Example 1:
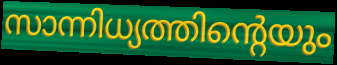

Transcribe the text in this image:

സാന്നിധ്യത്തിന്റെയും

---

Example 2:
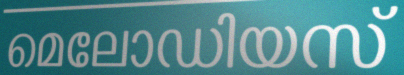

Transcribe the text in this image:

മെലോഡിയസ്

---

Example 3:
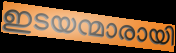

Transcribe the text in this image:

ഇടയന്മാരായി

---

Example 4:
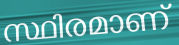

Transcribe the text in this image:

സ്ഥിരമാണ്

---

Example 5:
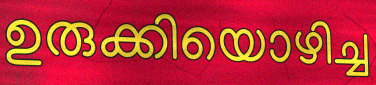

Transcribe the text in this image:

ഉരുക്കിയൊഴിച്ച